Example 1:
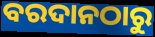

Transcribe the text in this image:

ବରଦାନଠାରୁ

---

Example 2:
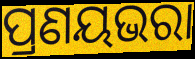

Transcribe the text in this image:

ପ୍ରଣୟଭରା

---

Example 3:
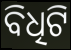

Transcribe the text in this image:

ବିଧିଟି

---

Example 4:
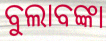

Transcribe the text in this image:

ବୁଲାବଙ୍କା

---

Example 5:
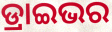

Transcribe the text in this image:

ଡ୍ରାଇଭର